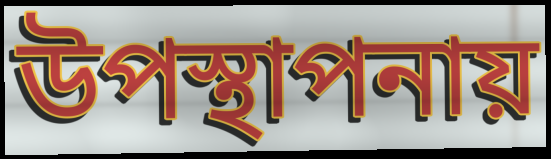
উপস্থাপনায়